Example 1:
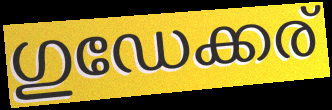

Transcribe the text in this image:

ഗുഡേക്കര്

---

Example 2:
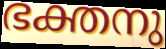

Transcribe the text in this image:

ഭക്തനു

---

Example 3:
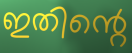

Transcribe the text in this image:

ഇതിന്റെ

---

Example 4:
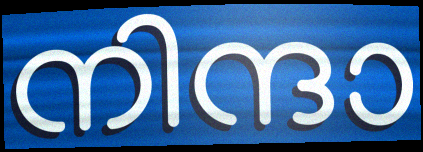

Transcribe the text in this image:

നിന്ദാ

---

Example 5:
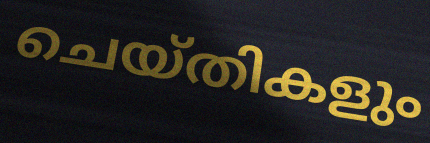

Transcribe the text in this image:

ചെയ്തികളും